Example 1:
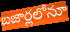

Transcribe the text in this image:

బజార్లలోనూ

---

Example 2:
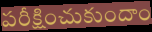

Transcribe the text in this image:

పరీక్షించుకుందాం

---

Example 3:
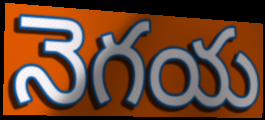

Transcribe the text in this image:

నెగయ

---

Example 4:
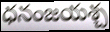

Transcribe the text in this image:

ధనంజయశ్చ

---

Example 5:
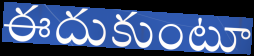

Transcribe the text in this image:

ఈదుకుంటూ